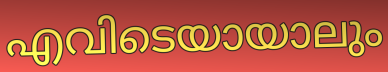
എവിടെയായാലും